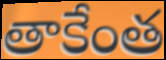
తాకేంత